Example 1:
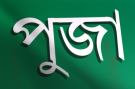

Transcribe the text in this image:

পুজা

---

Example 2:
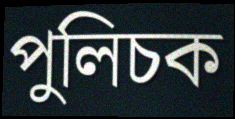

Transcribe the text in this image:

পুলিচক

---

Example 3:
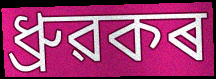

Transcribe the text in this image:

ধ্ৰুৱকৰ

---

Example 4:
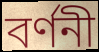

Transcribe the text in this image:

বৰ্ণনী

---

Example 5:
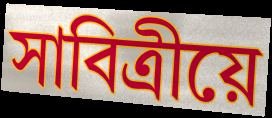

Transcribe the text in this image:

সাবিত্ৰীয়ে